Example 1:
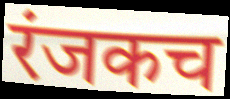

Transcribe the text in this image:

रंजकच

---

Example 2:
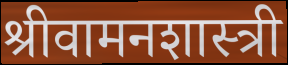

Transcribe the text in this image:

श्रीवामनशास्त्री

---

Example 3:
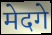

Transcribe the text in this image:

मेदगे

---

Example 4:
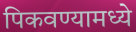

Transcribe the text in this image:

पिकवण्यामध्ये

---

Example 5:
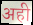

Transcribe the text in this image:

अही